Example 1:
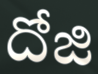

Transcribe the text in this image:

దోజి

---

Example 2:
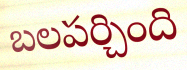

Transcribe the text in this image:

బలపర్చింది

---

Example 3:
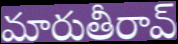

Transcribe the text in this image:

మారుతీరావ్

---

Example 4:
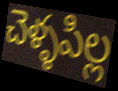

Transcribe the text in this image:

చెళ్ళపిల్ల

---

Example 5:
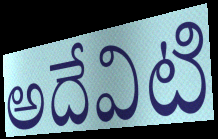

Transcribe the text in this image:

అదేవిటి